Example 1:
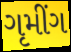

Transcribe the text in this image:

ગૃમીંગ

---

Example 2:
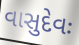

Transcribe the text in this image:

વાસુદેવઃ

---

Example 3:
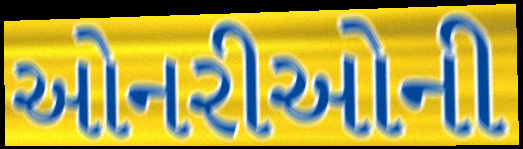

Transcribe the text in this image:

ઓનરીઓની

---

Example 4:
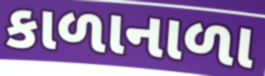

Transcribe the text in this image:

કાળાનાળા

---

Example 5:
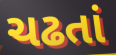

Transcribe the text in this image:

ચઢતાં